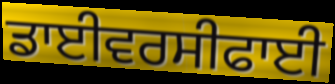
ਡਾਈਵਰਸੀਫਾਈ